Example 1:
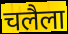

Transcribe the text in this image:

चलैला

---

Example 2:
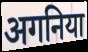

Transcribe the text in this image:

अगनिया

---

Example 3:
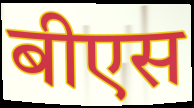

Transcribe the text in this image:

बीएस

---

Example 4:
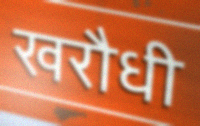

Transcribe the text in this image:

खरौधी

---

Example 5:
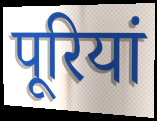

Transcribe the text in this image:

पूरियां